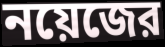
নয়েজের